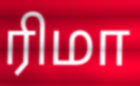
ரிமா